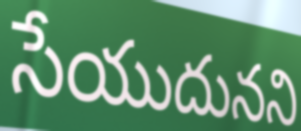
సేయుదునని